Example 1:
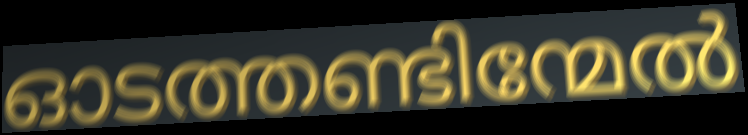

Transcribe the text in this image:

ഓടത്തണ്ടിന്മേൽ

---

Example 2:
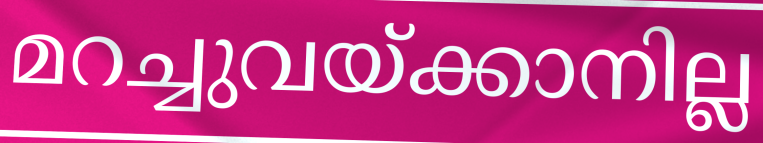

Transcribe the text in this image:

മറച്ചുവയ്ക്കാനില്ല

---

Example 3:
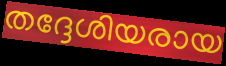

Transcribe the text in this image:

തദ്ദേശിയരായ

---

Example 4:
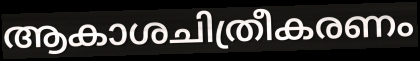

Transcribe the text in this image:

ആകാശചിത്രീകരണം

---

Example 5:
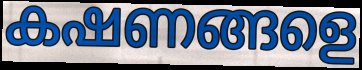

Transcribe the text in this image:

കഷണങ്ങളെ